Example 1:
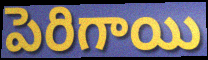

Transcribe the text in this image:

పెరిగాయి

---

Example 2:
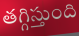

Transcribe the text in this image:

తగ్గిస్తుంది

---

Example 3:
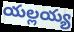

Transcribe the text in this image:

యల్లయ్య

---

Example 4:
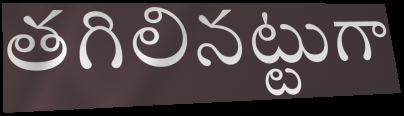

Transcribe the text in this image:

తగిలినట్టుగా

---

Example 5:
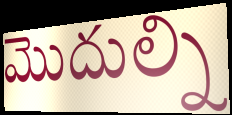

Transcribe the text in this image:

మొదుల్ని